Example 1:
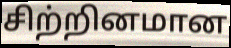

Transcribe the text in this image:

சிற்றினமான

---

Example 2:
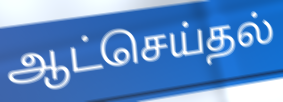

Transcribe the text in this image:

ஆட்செய்தல்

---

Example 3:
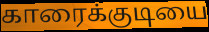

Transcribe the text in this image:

காரைக்குடியை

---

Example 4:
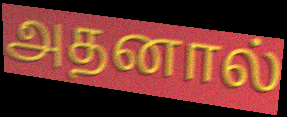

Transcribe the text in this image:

அதனால்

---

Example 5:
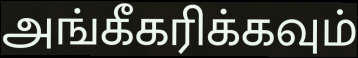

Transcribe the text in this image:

அங்கீகரிக்கவும்